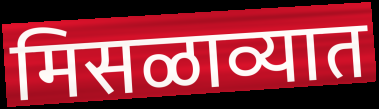
मिसळाव्यात